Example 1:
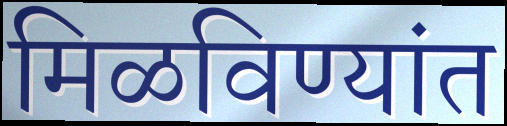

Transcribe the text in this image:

मिळविण्यांत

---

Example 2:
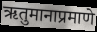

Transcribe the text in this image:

ऋतुमानाप्रमाणे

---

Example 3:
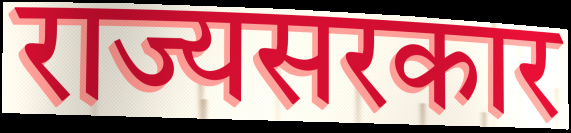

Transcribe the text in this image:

राज्यसरकार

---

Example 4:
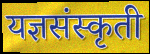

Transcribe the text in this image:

यज्ञसंस्कृती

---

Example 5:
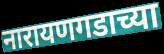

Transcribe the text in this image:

नारायणगडाच्या